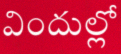
విందుల్లో